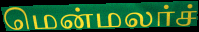
மென்மலர்ச்